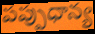
పప్పుధాన్య